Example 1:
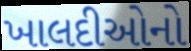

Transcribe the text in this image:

ખાલદીઓનો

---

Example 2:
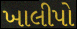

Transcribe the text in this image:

ખાલીપો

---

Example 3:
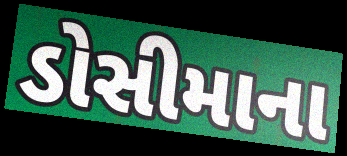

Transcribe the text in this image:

ડોસીમાના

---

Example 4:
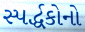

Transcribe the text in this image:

સ્પર્દ્ધકોનો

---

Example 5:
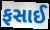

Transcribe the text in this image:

ફસાઈ